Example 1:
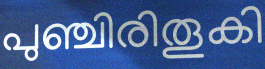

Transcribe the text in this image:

പുഞ്ചിരിതൂകി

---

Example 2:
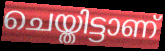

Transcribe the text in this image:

ചെയ്തിട്ടാണ്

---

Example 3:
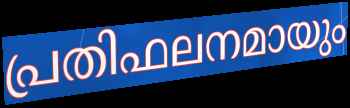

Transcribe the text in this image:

പ്രതിഫലനമായും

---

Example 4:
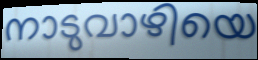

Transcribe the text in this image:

നാടുവാഴിയെ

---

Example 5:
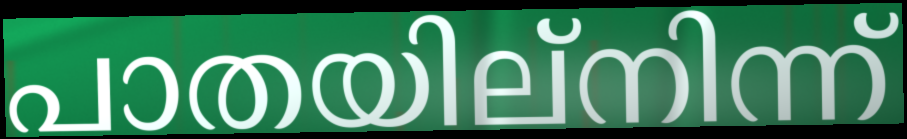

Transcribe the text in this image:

പാതയില്നിന്ന്